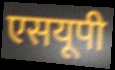
एसयूपी